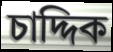
চাদ্দিক